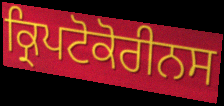
ਕ੍ਰਿਪਟੋਕੋਰੀਨਸ